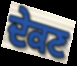
ਦੇਕਣ